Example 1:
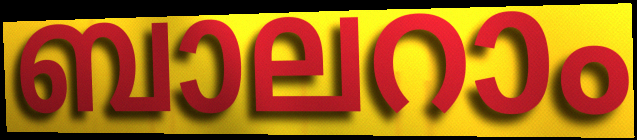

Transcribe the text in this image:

ബാലറാം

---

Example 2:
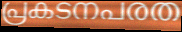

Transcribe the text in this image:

പ്രകടനപരത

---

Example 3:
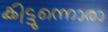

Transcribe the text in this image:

കിട്ടുന്നൊരാ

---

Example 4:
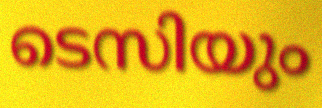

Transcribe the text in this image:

ടെസിയും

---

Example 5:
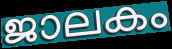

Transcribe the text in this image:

ജാലകം